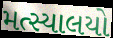
મત્સ્યાલયો